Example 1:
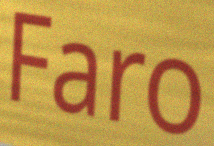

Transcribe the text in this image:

Faro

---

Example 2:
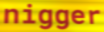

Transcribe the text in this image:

nigger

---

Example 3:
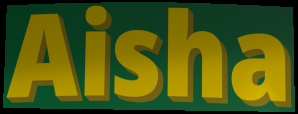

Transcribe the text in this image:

Aisha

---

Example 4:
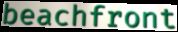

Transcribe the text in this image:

beachfront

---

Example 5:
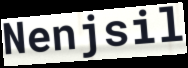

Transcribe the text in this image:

Nenjsil